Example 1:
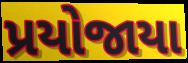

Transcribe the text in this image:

પ્રયોજાયા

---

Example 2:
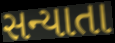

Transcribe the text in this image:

સન્યાતા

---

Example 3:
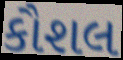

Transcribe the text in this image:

કૌશલ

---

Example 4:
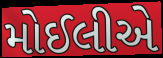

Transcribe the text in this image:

મોઈલીએ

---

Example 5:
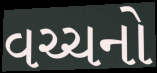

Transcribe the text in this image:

વચ્ચનો